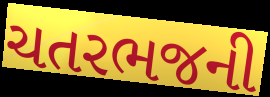
ચતરભજની